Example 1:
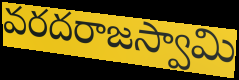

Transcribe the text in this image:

వరదరాజస్వామి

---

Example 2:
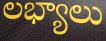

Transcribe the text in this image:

లభ్యాలు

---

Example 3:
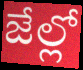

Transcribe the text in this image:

జేల్లో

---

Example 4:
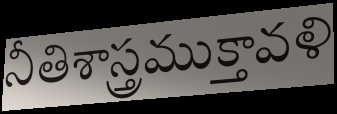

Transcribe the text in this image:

నీతిశాస్త్రముక్తావళి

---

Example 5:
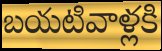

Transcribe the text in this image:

బయటివాళ్లకి